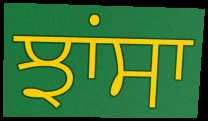
ਝਾਂਸਾ